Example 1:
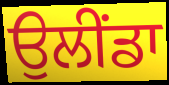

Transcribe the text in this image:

ਉਲੀਂਡਾ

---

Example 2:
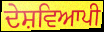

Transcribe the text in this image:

ਦੇਸ਼ਵਿਆਪੀ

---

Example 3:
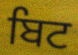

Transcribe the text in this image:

ਬਿਟ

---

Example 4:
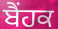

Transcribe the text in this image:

ਬੈਂਹਕ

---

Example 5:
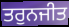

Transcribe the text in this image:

ਤਰੁਨਜੀਤ